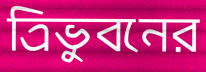
ত্রিভুবনের